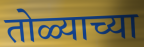
तोळ्याच्या